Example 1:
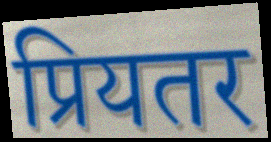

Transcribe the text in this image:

प्रियतर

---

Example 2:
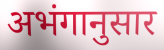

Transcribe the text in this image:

अभंगानुसार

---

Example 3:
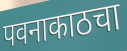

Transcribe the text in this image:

पवनाकाठचा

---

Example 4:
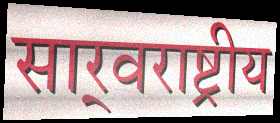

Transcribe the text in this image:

सार्वराष्ट्रीय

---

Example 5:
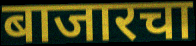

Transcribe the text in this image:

बाजारचा